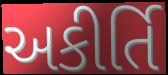
અકીર્તિ